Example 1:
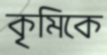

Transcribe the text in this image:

কৃমিকে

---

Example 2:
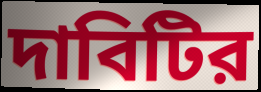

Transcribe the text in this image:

দাবিটির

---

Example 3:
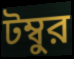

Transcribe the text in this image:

টম্বুর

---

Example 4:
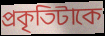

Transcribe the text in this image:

প্রকৃতিটাকে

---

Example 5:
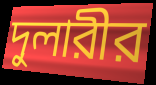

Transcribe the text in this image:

দুলারীর